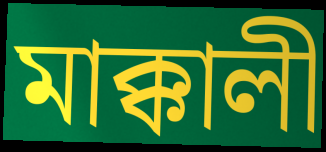
মাক্কালী